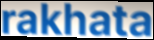
rakhata